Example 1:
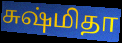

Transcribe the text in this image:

சுஷ்மிதா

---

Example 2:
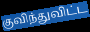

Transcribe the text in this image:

குவிந்துவிட்ட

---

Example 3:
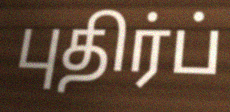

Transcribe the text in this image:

புதிர்ப்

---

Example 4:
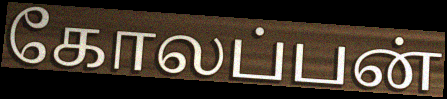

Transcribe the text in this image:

கோலப்பன்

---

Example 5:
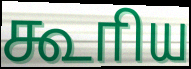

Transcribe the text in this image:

கூரிய